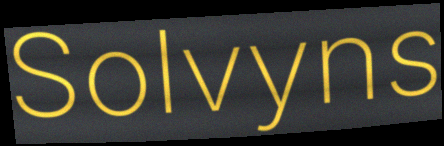
Solvyns